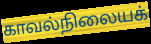
காவல்நிலையக்